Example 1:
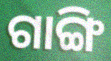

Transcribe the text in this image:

ଗାଙ୍ଗି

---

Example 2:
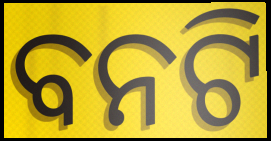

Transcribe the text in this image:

ବନଟି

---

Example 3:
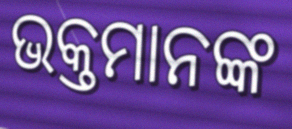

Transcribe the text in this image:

ଭକ୍ତମାନଙ୍କ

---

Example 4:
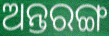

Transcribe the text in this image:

ଅନ୍ତରଙ୍ଗ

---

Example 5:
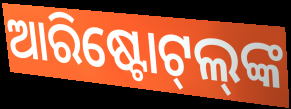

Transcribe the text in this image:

ଆରିଷ୍ଟୋଟ୍‌ଲ୍‌ଙ୍କ